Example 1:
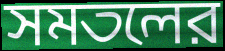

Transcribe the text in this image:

সমতলের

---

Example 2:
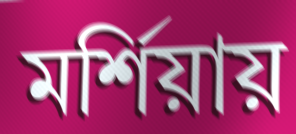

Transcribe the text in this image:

মর্শিয়ায়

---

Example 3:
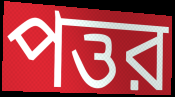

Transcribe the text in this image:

পত্তর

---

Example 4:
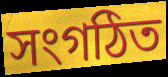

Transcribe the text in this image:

সংগঠিত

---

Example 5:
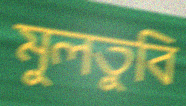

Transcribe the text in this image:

মুলতুবি